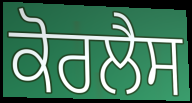
ਕੋਰਲੈਸ